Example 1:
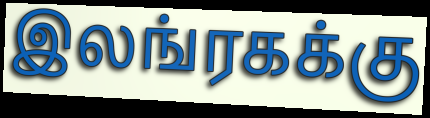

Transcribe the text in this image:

இலங்ரகக்கு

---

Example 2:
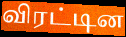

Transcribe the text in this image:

விரட்டின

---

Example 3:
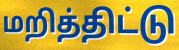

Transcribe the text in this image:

மறித்திட்டு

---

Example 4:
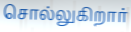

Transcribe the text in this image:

சொல்லுகிறார்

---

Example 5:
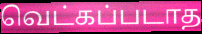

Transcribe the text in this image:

வெட்கப்படாத